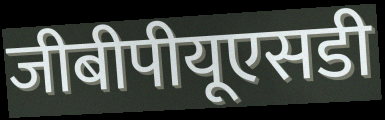
जीबीपीयूएसडी